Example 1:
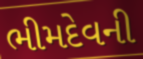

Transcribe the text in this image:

ભીમદેવની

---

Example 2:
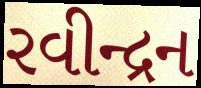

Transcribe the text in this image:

રવીન્દ્રન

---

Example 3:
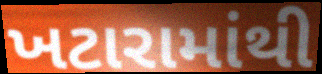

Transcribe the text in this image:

ખટારામાંથી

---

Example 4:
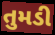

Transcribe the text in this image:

તુમડી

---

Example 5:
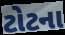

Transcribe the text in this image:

ટોટના